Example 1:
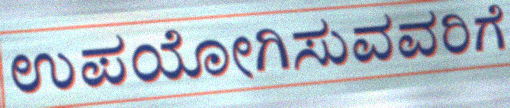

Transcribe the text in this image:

ಉಪಯೋಗಿಸುವವರಿಗೆ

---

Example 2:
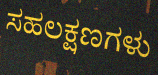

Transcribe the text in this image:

ಸಹಲಕ್ಷಣಗಳು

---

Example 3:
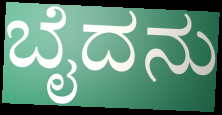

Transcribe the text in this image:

ಬೈದನು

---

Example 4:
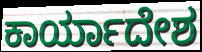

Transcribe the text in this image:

ಕಾರ್ಯಾದೇಶ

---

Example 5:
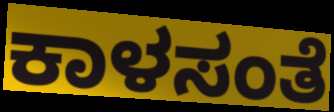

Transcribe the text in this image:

ಕಾಳಸಂತೆ